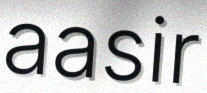
aasir